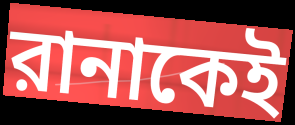
রানাকেই